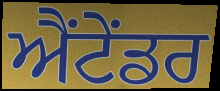
ਐਂਟੇਂਡਰ